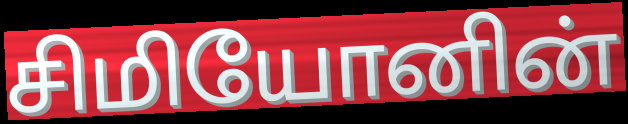
சிமியோனின்